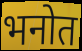
भनोत